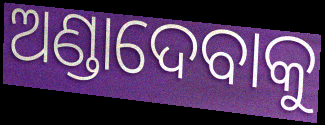
ଅଣ୍ଡାଦେବାକୁ